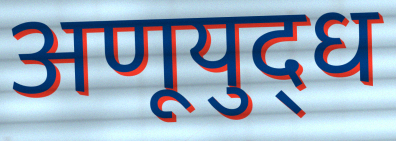
अणूयुद्ध